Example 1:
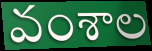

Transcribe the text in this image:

వంశాల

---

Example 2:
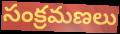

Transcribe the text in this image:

సంక్రమణలు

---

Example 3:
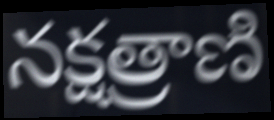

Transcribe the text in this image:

నక్షత్రాణి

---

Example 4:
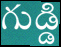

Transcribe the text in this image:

గుడ్డి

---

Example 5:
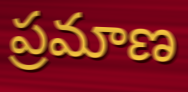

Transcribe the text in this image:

ప్రమాణ